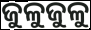
ଜୁଳୁଜୁଳୁ